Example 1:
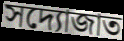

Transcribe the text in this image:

সদ্যোজাত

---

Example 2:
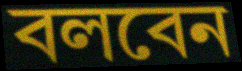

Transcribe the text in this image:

বলবেন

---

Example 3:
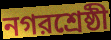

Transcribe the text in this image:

নগরশ্রেষ্ঠী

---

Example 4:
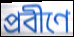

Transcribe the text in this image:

প্রবীণে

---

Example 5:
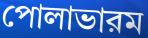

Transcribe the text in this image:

পোলাভারম